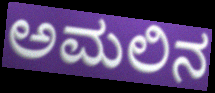
ಅಮಲಿನ